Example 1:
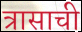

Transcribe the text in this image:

त्रासाची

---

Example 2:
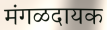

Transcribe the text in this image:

मंगळदायक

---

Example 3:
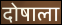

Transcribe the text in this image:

दोषाला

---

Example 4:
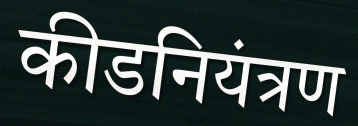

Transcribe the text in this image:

कीडनियंत्रण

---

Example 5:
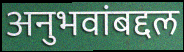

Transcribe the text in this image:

अनुभवांबद्दल